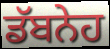
ਡੱਬਨੇਹ